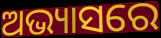
ଅଭ୍ୟାସରେ